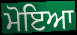
ਮੋਇਆ